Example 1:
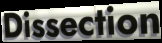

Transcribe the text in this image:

Dissection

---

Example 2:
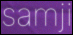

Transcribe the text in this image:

samji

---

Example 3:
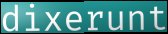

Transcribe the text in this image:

dixerunt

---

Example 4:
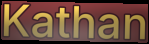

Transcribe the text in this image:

Kathan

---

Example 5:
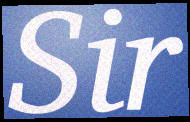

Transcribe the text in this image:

Sir